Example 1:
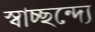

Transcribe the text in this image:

স্বাচ্ছন্দ্যে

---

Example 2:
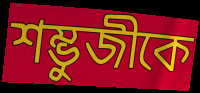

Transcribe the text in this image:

শম্ভুজীকে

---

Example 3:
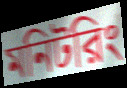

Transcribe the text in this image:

মনিটরিং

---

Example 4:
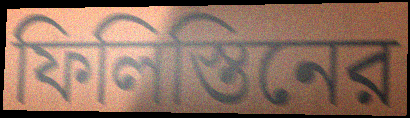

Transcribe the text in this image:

ফিলিস্তিনের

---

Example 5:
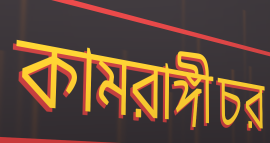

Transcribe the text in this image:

কামরাঙ্গীচর